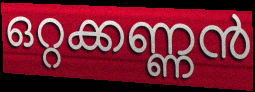
ഒറ്റക്കണ്ണൻ